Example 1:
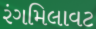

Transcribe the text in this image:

રંગમિલાવટ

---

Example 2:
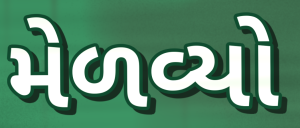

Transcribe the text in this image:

મેળવ્યો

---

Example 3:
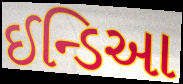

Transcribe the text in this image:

ઈન્ડિઆ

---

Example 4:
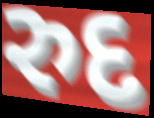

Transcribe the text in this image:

રુદ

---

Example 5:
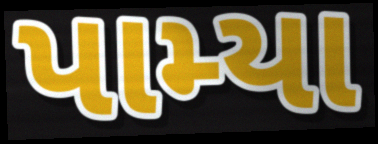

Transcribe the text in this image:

પામ્યા